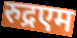
रुद्रएम